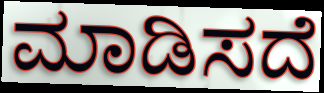
ಮಾಡಿಸದೆ